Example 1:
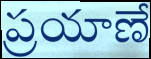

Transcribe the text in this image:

ప్రయాణే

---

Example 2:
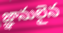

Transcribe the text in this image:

జ్ఞానులైన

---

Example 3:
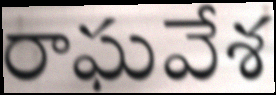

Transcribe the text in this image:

రాఘవేశ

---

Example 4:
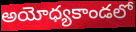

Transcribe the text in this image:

అయోధ్యకాండలో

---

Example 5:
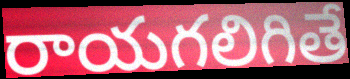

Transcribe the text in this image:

రాయగలిగితే